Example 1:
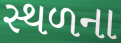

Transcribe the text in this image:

સ્થળના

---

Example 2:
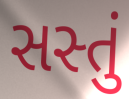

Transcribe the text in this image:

સસ્તું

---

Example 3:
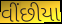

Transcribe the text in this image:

વીંછીયા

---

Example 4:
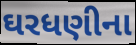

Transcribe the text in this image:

ઘરધણીના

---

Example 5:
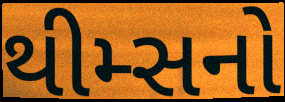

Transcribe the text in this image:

થીમ્સનો